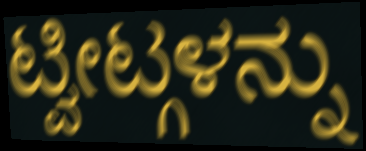
ಟ್ವೀಟ್ಗಳನ್ನು